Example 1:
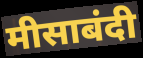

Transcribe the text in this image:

मीसाबंदी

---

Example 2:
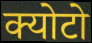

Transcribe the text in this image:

क्योटो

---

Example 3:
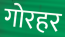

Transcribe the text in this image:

गोरहर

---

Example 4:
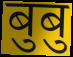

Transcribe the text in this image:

बुबु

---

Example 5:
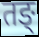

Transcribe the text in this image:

तङ्